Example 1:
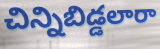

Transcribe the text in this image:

చిన్నిబిడ్డలారా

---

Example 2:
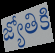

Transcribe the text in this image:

జ్యోతికి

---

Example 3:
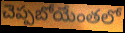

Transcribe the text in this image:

చెప్పబోయేంతలో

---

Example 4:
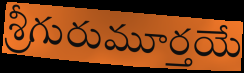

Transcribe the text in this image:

శ్రీగురుమూర్తయే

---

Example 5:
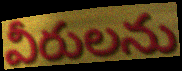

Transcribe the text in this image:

వీరులను